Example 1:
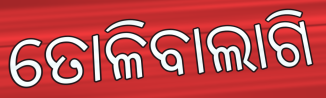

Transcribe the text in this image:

ତୋଳିବାଲାଗି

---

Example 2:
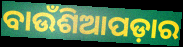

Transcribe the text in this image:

ବାଉଁଶିଆପଡ଼ାର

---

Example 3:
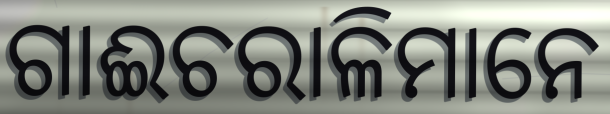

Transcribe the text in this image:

ଗାଈଚରାଳିମାନେ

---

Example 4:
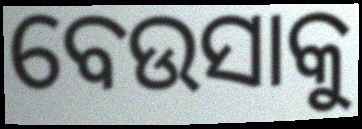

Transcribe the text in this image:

ବେଉସାକୁ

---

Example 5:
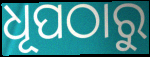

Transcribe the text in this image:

ଧୂପଠାରୁ